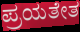
ಪ್ರಯತೇತ